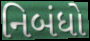
નિબંધો